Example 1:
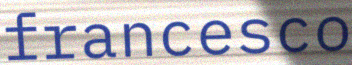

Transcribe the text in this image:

francesco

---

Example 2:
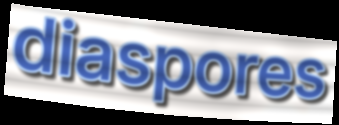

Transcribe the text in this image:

diaspores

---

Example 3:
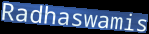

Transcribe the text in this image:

Radhaswamis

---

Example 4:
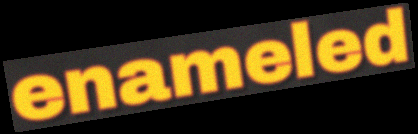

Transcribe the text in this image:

enameled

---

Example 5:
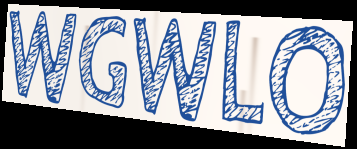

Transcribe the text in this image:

WGWLO